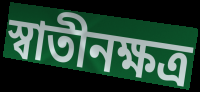
স্বাতীনক্ষত্র